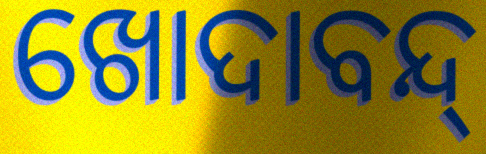
ଖୋଦାବନ୍ଦ୍